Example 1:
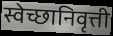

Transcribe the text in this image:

स्वेच्छानिवृत्ती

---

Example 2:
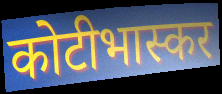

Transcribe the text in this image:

कोटीभास्कर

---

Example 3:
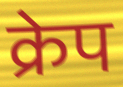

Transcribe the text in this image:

क्रेप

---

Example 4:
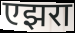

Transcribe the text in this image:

एझरा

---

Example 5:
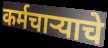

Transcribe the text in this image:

कर्मचाऱ्याचे